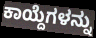
ಕಾಯ್ದೆಗಳನ್ನು